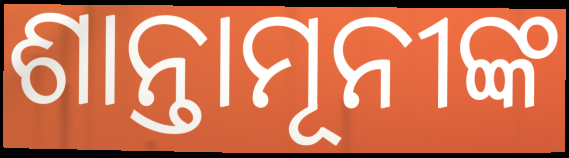
ଶାନ୍ତାମୂନୀଙ୍କ